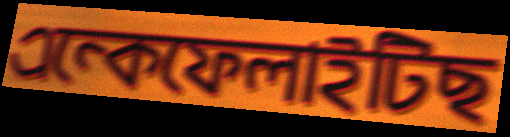
এন্কেফেলাইটিছ